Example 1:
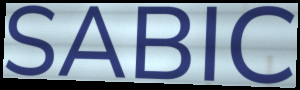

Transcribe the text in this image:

SABIC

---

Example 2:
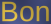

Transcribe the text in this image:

Bon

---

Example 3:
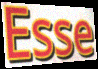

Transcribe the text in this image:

Esse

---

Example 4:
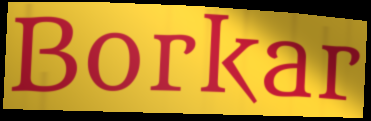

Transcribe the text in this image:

Borkar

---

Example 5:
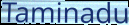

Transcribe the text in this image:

Taminadu